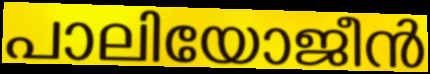
പാലിയോജീൻ